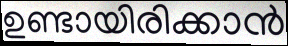
ഉണ്ടായിരിക്കാൻ